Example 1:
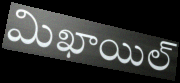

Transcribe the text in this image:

మిఖాయిల్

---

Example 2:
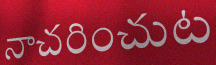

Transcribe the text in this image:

నాచరించుట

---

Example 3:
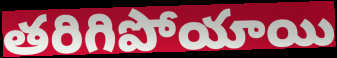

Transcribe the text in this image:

తరిగిపోయాయి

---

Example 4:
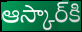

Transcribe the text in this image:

ఆస్కార్‌కి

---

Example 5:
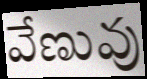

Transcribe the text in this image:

వేణువు